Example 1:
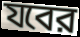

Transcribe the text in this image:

যবের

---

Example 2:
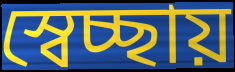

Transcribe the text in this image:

স্বেচ্ছায়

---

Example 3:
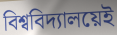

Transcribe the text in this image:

বিশ্ববিদ্যালয়েই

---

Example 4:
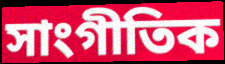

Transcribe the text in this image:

সাংগীতিক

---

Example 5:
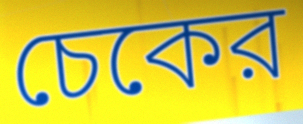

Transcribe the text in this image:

চেকের